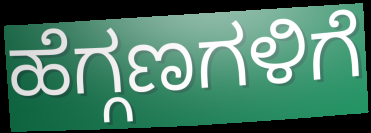
ಹೆಗ್ಗಣಗಳಿಗೆ